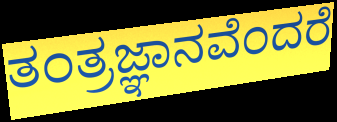
ತಂತ್ರಜ್ಞಾನವೆಂದರೆ